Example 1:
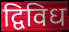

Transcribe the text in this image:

द्विविध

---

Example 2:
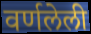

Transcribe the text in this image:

वर्णलेली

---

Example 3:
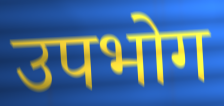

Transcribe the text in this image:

उपभोग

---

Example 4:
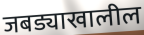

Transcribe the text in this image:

जबड्याखालील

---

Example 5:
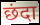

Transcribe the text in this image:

छंदा